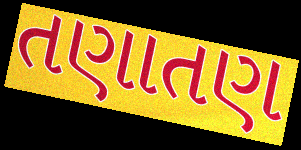
તણાતણ